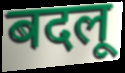
बदलू